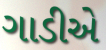
ગાડીએ